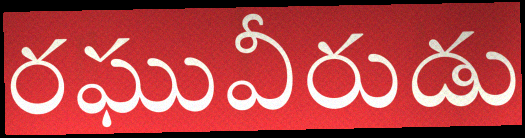
రఘువీరుడు